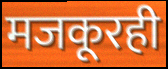
मजकूरही